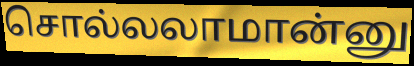
சொல்லலாமான்னு